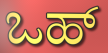
ಒಹ್